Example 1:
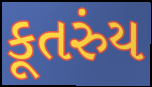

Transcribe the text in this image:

કૂતરુંય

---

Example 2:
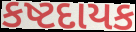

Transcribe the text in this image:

કષ્ટદાયક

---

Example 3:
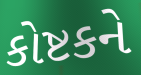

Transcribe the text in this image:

કોષ્ટકને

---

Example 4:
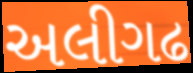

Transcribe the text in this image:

અલીગઢ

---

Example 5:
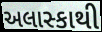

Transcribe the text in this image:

અલાસ્કાથી